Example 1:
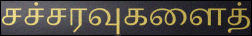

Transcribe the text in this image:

சச்சரவுகளைத்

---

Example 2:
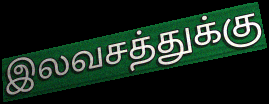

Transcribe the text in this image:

இலவசத்துக்கு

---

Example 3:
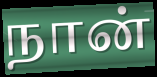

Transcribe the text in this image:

நான்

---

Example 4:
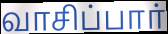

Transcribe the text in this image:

வாசிப்பார்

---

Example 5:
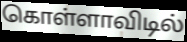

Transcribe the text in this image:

கொள்ளாவிடில்